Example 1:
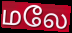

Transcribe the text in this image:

மலே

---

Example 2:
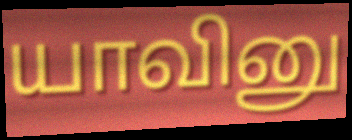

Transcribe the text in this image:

யாவினு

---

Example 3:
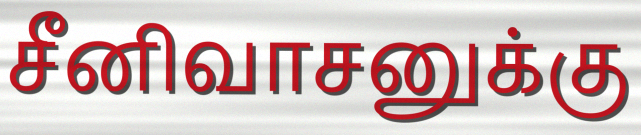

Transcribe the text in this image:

சீனிவாசனுக்கு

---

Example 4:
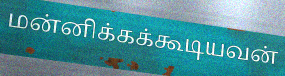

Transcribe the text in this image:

மன்னிக்கக்கூடியவன்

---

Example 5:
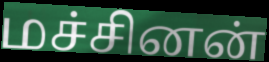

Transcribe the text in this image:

மச்சினன்